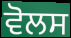
ਵੋਲਸ